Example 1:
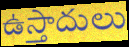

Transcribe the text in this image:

ఉస్తాదులు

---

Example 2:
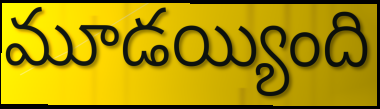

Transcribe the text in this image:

మూడయ్యింది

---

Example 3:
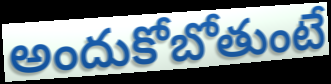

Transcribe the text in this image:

అందుకోబోతుంటే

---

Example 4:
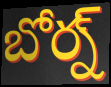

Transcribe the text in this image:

బోర్న్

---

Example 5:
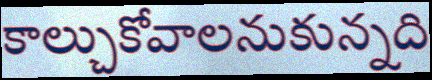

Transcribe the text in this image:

కాల్చుకోవాలనుకున్నది